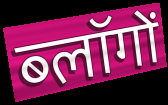
ब्‍लॉगों